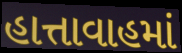
હાત્તાવાહમાં